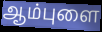
ஆம்புளை